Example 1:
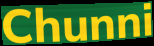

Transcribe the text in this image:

Chunni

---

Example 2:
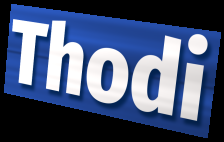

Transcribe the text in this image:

Thodi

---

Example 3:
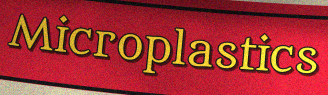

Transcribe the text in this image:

Microplastics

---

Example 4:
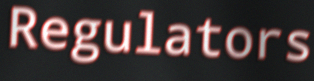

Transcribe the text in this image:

Regulators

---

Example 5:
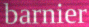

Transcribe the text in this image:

barnier